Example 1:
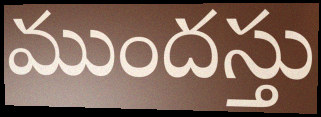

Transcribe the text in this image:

ముందస్తు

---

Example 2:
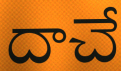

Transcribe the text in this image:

దాచే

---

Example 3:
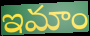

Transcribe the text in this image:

ఇమాం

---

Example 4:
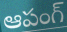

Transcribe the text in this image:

ఆపంగ్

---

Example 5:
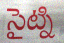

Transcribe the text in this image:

సైట్ని